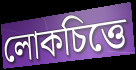
লোকচিত্তে